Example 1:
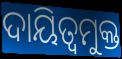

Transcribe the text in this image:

ଦାୟିତ୍ୱମୁକ୍ତ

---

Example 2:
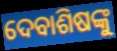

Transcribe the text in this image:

ଦେବାଶିଷଙ୍କୁ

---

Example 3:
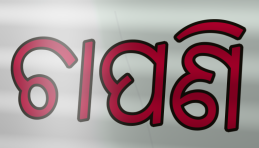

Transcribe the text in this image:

ଚାପଣି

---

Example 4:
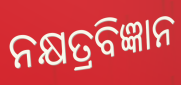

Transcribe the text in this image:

ନକ୍ଷତ୍ରବିଜ୍ଞାନ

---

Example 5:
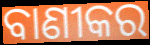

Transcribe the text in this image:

ବାଣୀକର